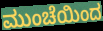
ಮುಂಚೆಯಿಂದ